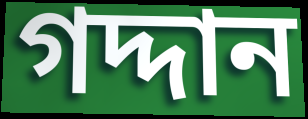
গদ্দান